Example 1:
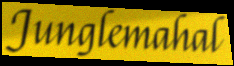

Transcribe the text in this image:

Junglemahal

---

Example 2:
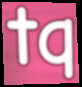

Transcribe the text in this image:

tq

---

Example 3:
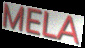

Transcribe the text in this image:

MELA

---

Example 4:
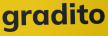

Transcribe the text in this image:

gradito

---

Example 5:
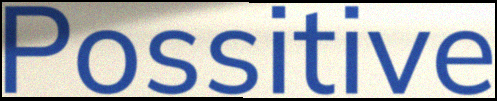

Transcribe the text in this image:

Possitive